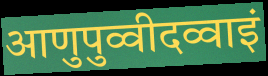
आणुपुव्वीदव्वाइं